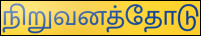
நிறுவனத்தோடு